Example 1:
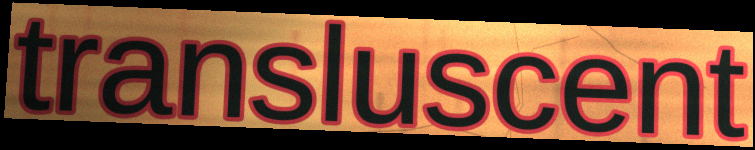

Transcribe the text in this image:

transluscent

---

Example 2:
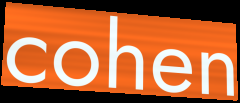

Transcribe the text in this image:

cohen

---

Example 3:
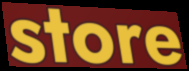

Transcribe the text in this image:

store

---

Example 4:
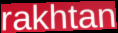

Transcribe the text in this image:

rakhtan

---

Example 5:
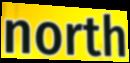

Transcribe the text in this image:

north